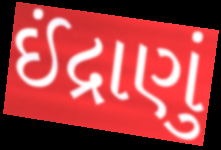
ઈંદ્રાણું